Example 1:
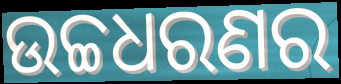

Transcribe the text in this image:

ଉଚ୍ଚଧରଣର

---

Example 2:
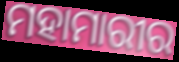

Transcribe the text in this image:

ମହାମାରୀର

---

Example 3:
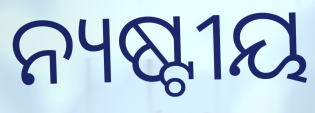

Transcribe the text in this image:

ନ୍ୟଷ୍ଟୀୟ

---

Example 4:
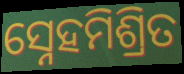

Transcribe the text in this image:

ସ୍ନେହମିଶ୍ରିତ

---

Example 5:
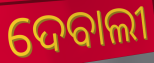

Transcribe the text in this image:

ଦେବାଲୀ